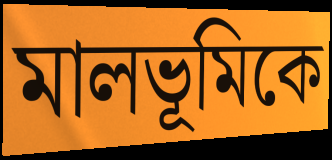
মালভূমিকে